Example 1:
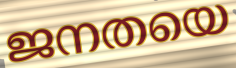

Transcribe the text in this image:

ജനതയെ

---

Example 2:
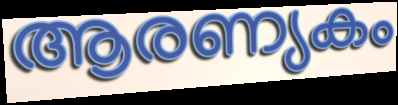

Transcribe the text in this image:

ആരണ്യകം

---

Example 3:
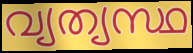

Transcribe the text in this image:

വ്യത്യസ്ഥ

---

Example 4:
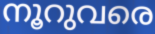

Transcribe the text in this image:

നൂറുവരെ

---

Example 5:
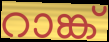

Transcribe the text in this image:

റാങ്ക്